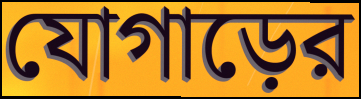
যোগাড়ের